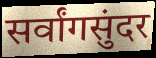
सर्वांगसुंदर